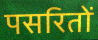
पसरितों